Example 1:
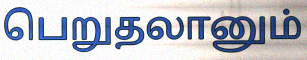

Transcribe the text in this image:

பெறுதலானும்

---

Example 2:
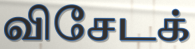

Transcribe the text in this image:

விசேடக்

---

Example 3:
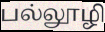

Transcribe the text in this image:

பல்லூழி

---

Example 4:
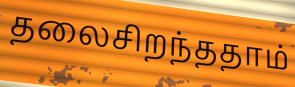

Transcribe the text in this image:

தலைசிறந்ததாம்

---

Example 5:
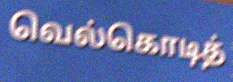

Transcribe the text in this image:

வெல்கொடித்